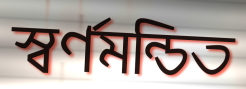
স্বর্ণমন্ডিত